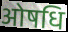
ओषधि